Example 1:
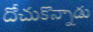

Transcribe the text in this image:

దోచుకొన్నాడు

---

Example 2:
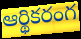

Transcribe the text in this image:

ఆర్థికరంగ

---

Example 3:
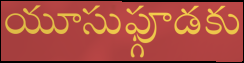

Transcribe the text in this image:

యూసుఫ్గూడకు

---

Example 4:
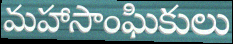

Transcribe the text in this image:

మహాసాంఘికులు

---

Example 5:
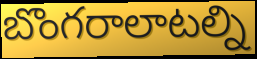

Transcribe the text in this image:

బొంగరాలాటల్ని